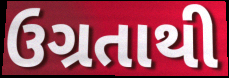
ઉગ્રતાથી